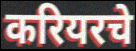
करियरचे